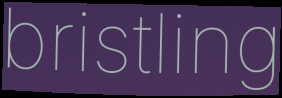
bristling